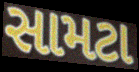
સામટા